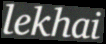
lekhai